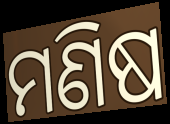
ମଣିଷ